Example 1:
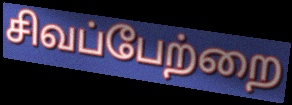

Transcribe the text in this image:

சிவப்பேற்றை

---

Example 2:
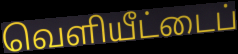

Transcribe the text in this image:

வெளியீட்டைப்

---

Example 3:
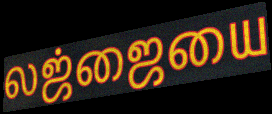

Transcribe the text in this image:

லஜ்ஜையை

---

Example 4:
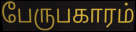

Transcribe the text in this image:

பேருபகாரம்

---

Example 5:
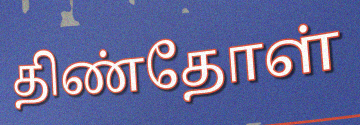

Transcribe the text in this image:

திண்தோள்